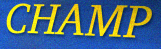
CHAMP